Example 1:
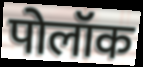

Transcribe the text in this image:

पोलॉक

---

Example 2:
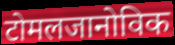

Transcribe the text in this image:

टोमलजानोविक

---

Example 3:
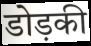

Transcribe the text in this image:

डोड़की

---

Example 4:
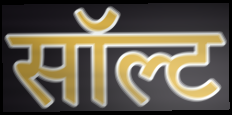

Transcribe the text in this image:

सॉल्‍ट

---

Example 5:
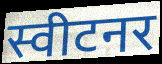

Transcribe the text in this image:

स्वीटनर